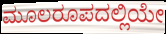
ಮೂಲರೂಪದಲ್ಲಿಯೇ